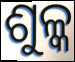
ଶୁଳ୍କ